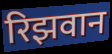
रिझवान